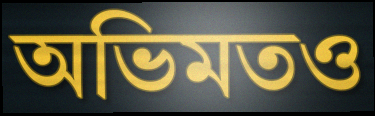
অভিমতও